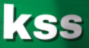
kss